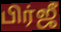
பிர்ஜீ